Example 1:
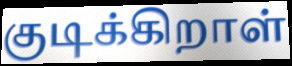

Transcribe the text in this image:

குடிக்கிறாள்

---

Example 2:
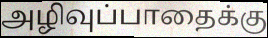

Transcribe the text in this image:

அழிவுப்பாதைக்கு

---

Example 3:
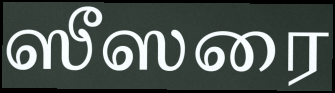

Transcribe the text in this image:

ஸீஸரை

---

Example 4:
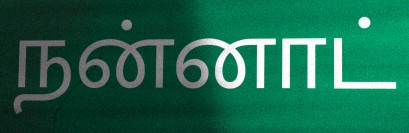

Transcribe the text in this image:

நன்னாட்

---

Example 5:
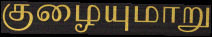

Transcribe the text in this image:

குழையுமாறு